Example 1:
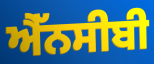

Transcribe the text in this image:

ਐੱਨਸੀਬੀ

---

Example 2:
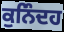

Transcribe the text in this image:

ਕੁਨਿੰਦਹ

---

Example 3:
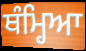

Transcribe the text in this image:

ਥੰਮ੍ਹ੍ਹਿਆ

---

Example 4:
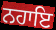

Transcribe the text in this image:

ਨਹਾਇ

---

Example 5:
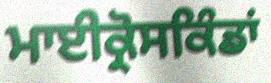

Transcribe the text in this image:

ਮਾਈਕ੍ਰੋਸਕਿੰਡਾਂ